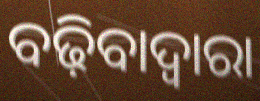
ବଢ଼ିବାଦ୍ୱାରା